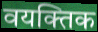
वयक्तिक